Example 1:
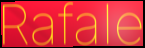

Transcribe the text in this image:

Rafale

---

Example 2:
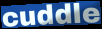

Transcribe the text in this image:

cuddle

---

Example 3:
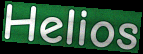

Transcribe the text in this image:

Helios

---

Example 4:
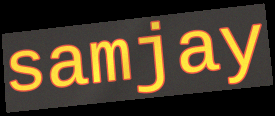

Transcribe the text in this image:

samjay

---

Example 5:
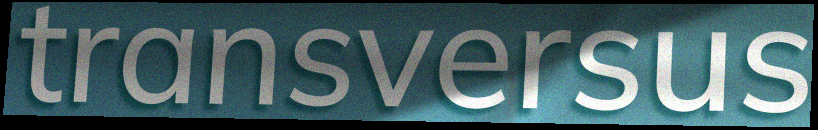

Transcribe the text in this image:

transversus